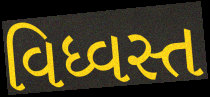
વિધ્વસ્ત